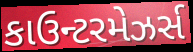
કાઉન્ટરમેઝર્સ